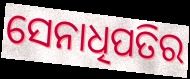
ସେନାଧିପତିର